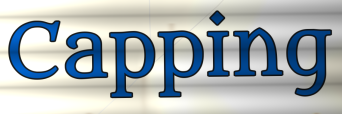
Capping